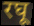
रघू